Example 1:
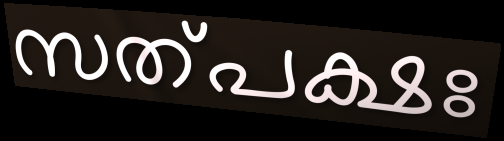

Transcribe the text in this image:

സത്പക്ഷഃ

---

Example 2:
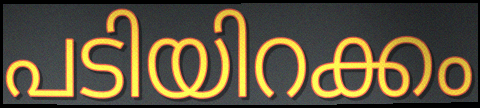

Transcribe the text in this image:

പടിയിറക്കം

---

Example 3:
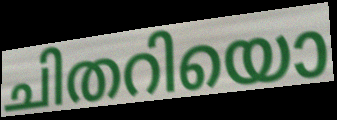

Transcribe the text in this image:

ചിതറിയൊ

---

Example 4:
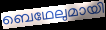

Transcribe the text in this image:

ബെഥേലുമായി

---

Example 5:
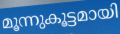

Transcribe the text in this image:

മൂന്നുകൂട്ടമായി